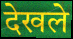
देखले